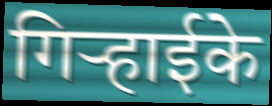
गिर्‍हाईके